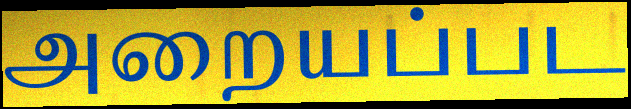
அறையப்பட